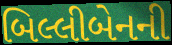
બિલ્લીબેનની